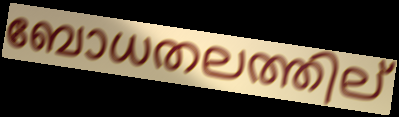
ബോധതലത്തില്